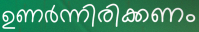
ഉണർന്നിരിക്കണം